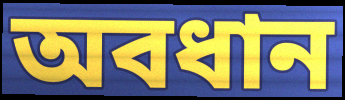
অবধান